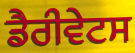
ਡੈਰੀਵੇਟਸ